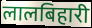
लालबिहारी